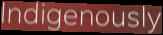
Indigenously